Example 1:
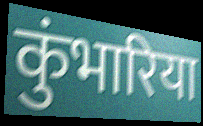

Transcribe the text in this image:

कुंभारिया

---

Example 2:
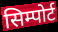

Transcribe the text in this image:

सिम्पोर्ट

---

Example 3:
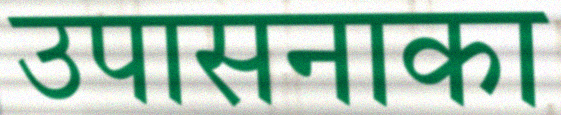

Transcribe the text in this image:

उपासनाका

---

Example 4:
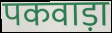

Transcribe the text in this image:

पकवाड़ा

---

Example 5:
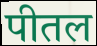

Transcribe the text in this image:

पीतल